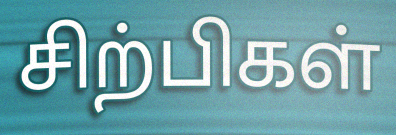
சிற்பிகள்